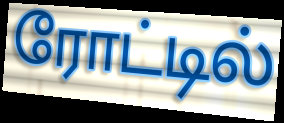
ரோட்டில்